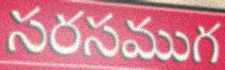
సరసముగ